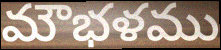
మౌభళము